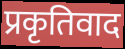
प्रकृतिवाद